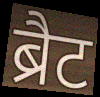
ब्रैट